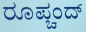
ರೂಪ್ಚಂದ್